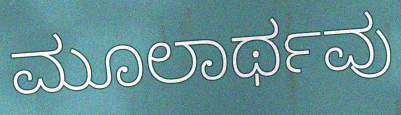
ಮೂಲಾರ್ಥವು